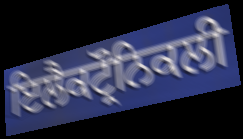
ਇਲੈਕਟ੍ਰੌਨਿਕਲੀ